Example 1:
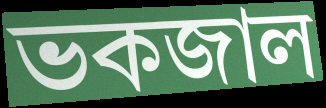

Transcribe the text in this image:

ভকজাল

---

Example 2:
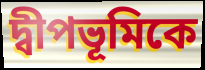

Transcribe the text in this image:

দ্বীপভূমিকে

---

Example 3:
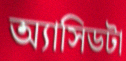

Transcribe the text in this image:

অ্যাসিডটা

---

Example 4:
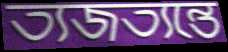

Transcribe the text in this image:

ত্যজত্যন্তে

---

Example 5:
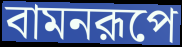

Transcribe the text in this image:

বামনরূপে